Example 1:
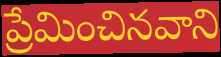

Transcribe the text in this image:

ప్రేమించినవాని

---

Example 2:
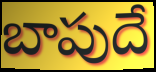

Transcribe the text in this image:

బాపుదే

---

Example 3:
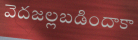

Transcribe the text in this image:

వెదజల్లబడిందాకా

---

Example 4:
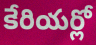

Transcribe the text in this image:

కేరియర్లో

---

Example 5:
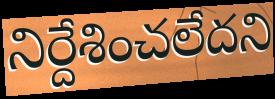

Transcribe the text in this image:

నిర్దేశించలేదని